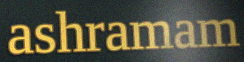
ashramam